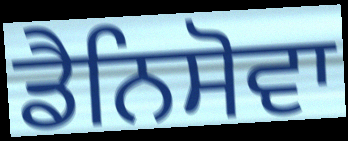
ਡੈਨਿਸੋਵਾ